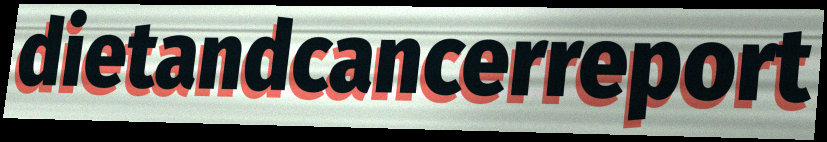
dietandcancerreport